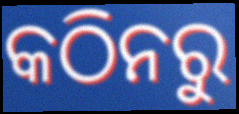
କଠିନରୁ